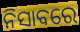
ନିସାବରେ